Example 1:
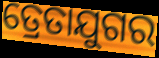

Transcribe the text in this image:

ତ୍ରେତାଯୁଗର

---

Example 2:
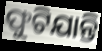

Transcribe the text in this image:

ଫୁଟିଯାନ୍ତି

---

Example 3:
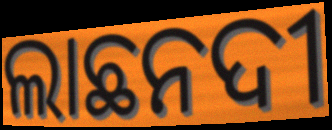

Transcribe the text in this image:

ଲାଛନଦୀ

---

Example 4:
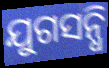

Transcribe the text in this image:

ଯୁଗସନ୍ଧି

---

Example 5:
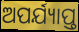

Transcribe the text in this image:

ଅପର୍ଯ୍ୟାପ୍ତ